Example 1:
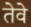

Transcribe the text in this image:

तेवे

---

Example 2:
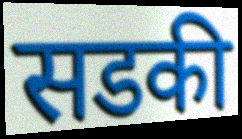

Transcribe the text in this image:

सडकी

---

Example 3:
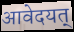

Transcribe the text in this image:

आवेदयत्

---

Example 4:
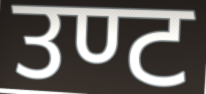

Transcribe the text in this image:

उण्ट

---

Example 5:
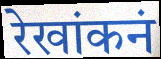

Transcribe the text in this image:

रेखांकनं